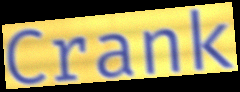
Crank